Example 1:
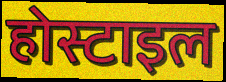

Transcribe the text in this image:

होस्टाइल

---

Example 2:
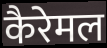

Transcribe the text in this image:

कैरेमल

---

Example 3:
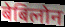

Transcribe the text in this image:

बेबिलोन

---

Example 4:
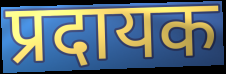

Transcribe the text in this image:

प्रदायक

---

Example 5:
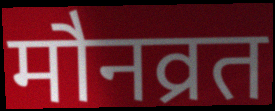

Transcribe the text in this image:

मौनव्रत